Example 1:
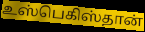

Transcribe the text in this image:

உஸ்பெகிஸ்தான்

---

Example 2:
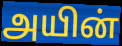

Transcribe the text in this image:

அயின்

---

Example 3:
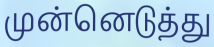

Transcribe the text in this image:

முன்னெடுத்து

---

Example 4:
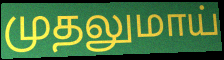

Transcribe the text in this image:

முதலுமாய்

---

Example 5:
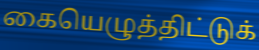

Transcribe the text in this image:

கையெழுத்திட்டுக்